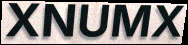
XNUMX